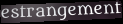
estrangement